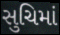
સુચિમાં